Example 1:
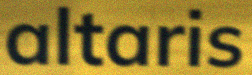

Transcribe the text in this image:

altaris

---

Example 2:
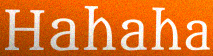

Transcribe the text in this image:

Hahaha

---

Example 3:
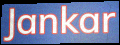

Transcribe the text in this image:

Jankar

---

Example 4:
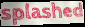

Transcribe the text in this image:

splashed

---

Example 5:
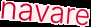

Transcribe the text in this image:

navare